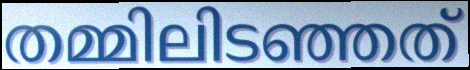
തമ്മിലിടഞ്ഞത്